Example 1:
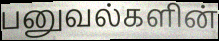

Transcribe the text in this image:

பனுவல்களின்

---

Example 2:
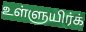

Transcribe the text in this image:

உள்ளுயிர்க்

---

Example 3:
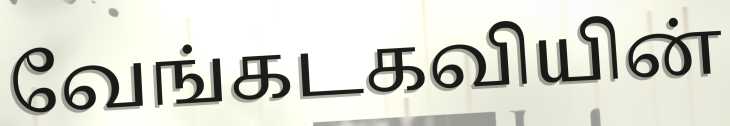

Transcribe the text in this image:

வேங்கடகவியின்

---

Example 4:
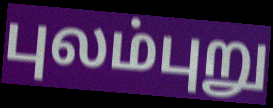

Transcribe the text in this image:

புலம்புறு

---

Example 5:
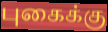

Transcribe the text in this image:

புகைக்கு